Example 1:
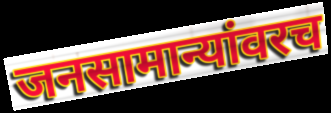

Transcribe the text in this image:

जनसामान्यांवरच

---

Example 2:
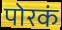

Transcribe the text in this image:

पोरकं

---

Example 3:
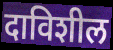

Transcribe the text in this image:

दाविशील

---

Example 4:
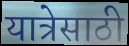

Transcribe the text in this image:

यात्रेसाठी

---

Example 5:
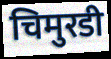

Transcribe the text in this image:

चिमुरडी